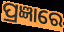
ପ୍ରଜ୍ଞାରେ